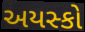
અયસ્કો